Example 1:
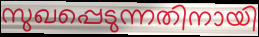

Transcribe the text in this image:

സുഖപ്പെടുന്നതിനായി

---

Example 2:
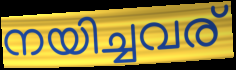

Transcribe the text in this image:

നയിച്ചവര്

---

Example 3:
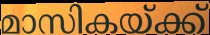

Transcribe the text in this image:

മാസികയ്ക്ക്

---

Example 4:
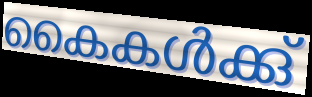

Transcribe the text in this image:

കൈകൾക്കു്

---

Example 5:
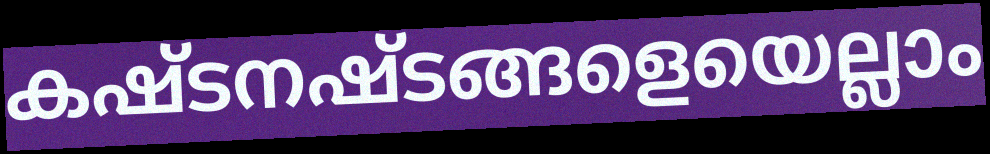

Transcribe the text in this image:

കഷ്ടനഷ്ടങ്ങളെയെല്ലാം